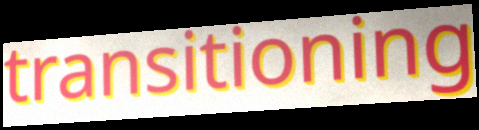
transitioning